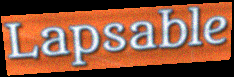
Lapsable